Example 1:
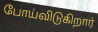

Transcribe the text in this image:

போய்விடுகிறார்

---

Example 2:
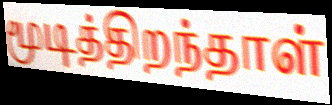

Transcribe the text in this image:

மூடித்திறந்தாள்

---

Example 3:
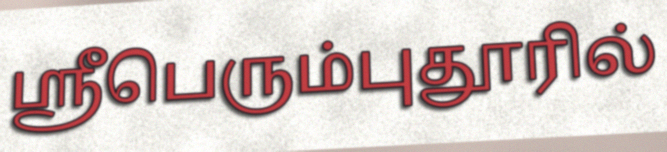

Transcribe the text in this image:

ஸ்ரீபெரும்புதூரில்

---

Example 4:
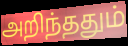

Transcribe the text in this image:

அறிந்ததும்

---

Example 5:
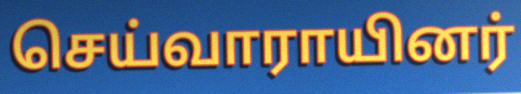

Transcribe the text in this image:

செய்வாராயினர்